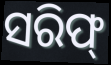
ସରିଫ୍